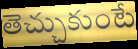
తెచ్చుకుంటే